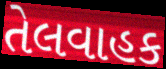
તેલવાહક